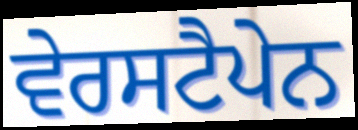
ਵੇਰਸਟੈਪੇਨ